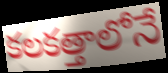
కలకత్తాలోనే